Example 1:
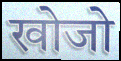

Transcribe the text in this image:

खोजो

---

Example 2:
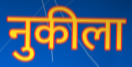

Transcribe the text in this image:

नुकीला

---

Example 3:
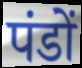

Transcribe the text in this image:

पंडों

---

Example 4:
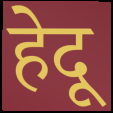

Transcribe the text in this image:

हेदू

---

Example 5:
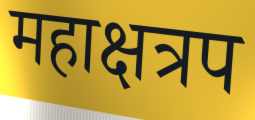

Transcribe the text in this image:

महाक्षत्रप